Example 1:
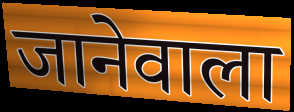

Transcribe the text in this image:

जानेवाला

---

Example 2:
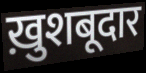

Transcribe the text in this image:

ख़ुशबूदार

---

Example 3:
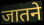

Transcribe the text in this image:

जातने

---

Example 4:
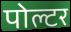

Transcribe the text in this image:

पोल्टर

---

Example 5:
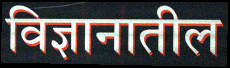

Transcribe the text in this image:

विज्ञानातील